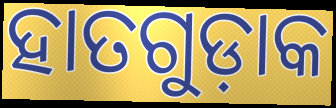
ହାତଗୁଡ଼ାକ